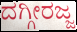
ದಗ್ಗೀರಜ್ಜ